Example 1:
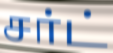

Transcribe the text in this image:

சர்ட்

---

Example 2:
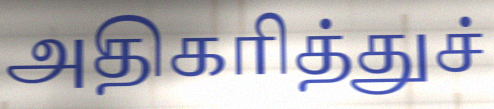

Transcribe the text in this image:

அதிகரித்துச்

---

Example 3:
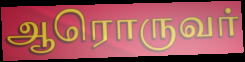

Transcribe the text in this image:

ஆரொருவர்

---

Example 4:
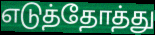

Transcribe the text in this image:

எடுத்தோத்து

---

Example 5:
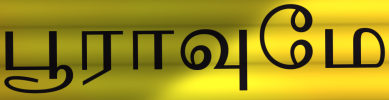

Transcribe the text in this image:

பூராவுமே